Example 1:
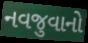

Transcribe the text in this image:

નવજુવાનો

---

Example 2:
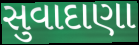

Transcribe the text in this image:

સુવાદાણા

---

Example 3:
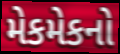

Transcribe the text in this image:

મેકમેકનો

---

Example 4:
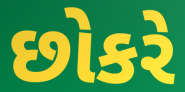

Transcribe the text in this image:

છોકરે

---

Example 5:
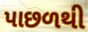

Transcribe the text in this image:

પાછળથી